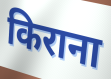
किराना